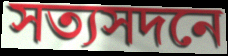
সত্যসদনে